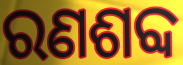
ରଣଶବ୍ଦ